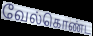
வேல்கொண்ட